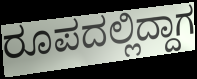
ರೂಪದಲ್ಲಿದ್ದಾಗ